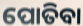
ପୋତିବା